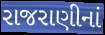
રાજરાણીનાં